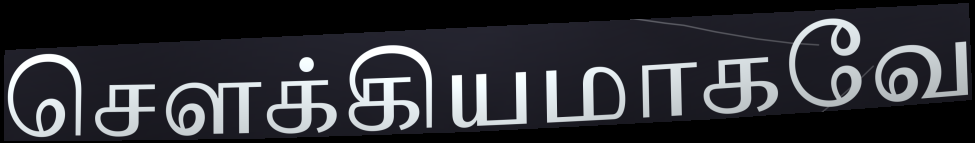
சௌக்கியமாகவே